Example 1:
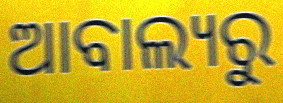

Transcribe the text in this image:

ଆବାଲ୍ୟରୁ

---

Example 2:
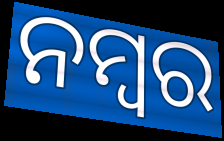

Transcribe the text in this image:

ନମ୍ବର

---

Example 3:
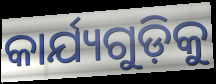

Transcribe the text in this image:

କାର୍ଯ୍ୟଗୁଡ଼ିକୁ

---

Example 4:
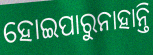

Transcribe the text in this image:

ହୋଇପାରୁନାହାନ୍ତି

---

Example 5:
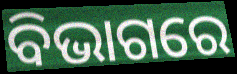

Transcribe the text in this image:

ବିଭାଗରେ